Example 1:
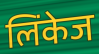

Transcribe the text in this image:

लिंकेज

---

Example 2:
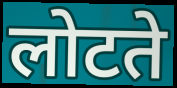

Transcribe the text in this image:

लोटते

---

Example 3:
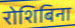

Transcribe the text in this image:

रोशिबिना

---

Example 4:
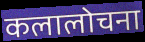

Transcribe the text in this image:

कलालोचना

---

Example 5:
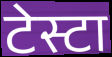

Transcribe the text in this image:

टेस्टा